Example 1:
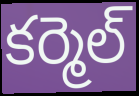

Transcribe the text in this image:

కర్మెల్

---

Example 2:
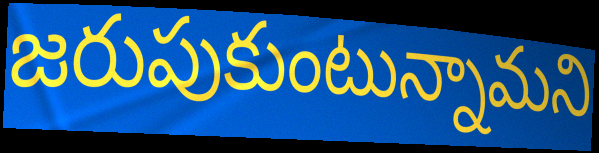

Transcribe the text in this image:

జరుపుకుంటున్నామని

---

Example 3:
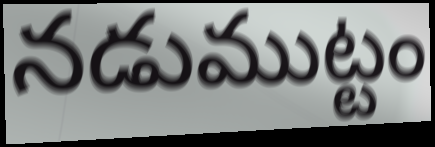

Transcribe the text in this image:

నడుముట్టం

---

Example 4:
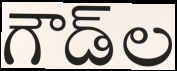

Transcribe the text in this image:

గౌడ్‌ల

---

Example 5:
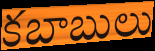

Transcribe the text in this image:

కబాబులు